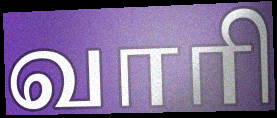
வாரி